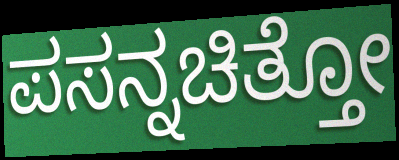
ಪಸನ್ನಚಿತ್ತೋ